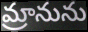
మ్రానును